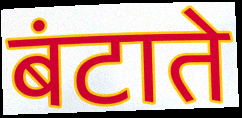
बंटाते